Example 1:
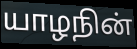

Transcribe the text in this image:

யாழநின்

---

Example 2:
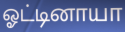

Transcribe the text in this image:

ஓட்டினாயா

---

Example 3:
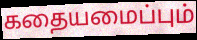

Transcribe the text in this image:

கதையமைப்பும்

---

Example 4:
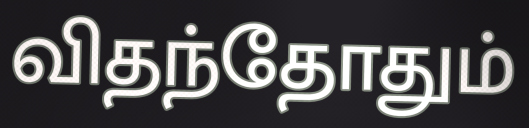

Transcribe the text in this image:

விதந்தோதும்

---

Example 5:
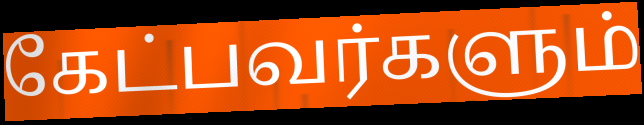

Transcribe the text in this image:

கேட்பவர்களும்